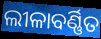
ଲୀଳାବର୍ଣ୍ଣିତ